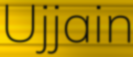
Ujjain